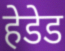
हेडेड